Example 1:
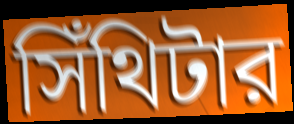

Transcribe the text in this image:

সিঁথিটার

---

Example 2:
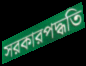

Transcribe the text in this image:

সরকারপদ্ধতি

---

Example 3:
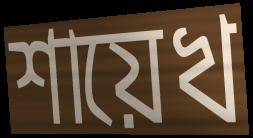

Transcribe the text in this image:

শায়েখ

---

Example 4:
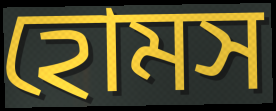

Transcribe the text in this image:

হোমস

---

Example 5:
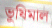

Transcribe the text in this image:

ভূষিমাল